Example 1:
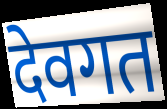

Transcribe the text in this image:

देवगत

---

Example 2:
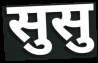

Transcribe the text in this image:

सुसु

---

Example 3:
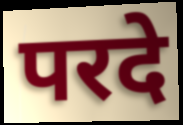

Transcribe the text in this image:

परदे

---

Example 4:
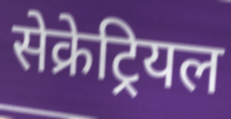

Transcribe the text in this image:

सेक्रेट्रियल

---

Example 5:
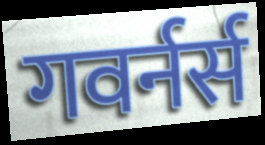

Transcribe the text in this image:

गवर्नर्स